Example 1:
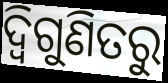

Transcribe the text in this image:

ଦ୍ୱିଗୁଣିତରୁ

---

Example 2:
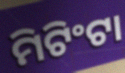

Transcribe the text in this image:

ମିଟିଂଟା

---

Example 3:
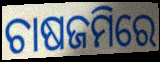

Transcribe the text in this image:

ଚାଷଜମିରେ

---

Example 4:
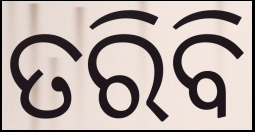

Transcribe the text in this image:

ତରିବି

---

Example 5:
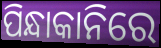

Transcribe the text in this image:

ପିନ୍ଧାକାନିରେ